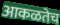
आकळतेच